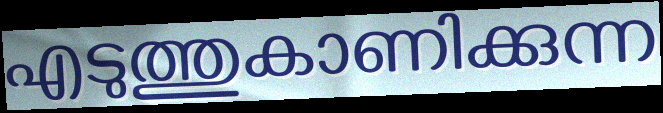
എടുത്തുകാണിക്കുന്ന